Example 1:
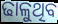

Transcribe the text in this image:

ଢାଳୁଥିବ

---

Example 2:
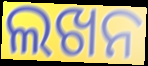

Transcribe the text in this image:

ଲଖନ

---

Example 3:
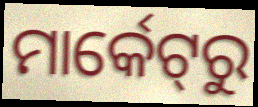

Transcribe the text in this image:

ମାର୍କେଟ୍‌ରୁ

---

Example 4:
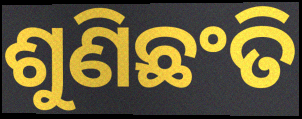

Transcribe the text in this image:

ଶୁଣିଛଂତି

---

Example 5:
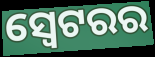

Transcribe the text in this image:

ସ୍ୱେଟରର